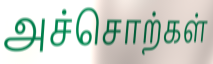
அச்சொற்கள்